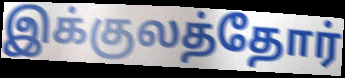
இக்குலத்தோர்